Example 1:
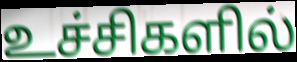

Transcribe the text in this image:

உச்சிகளில்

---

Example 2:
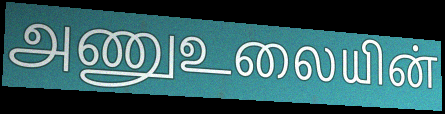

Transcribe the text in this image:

அணுஉலையின்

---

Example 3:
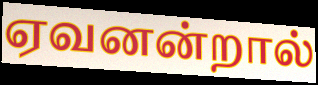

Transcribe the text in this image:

ஏவனன்றால்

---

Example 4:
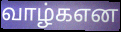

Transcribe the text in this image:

வாழ்கஎன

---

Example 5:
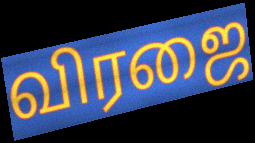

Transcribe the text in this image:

விரஜை